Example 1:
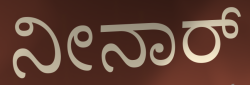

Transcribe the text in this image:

ನೀನಾರ್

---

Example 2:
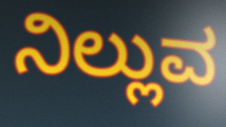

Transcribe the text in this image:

ನಿಲ್ಲುವ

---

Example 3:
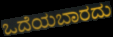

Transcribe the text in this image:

ಒದೆಯಬಾರದು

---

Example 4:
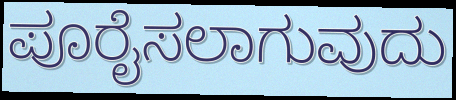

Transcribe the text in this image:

ಪೂರೈಸಲಾಗುವುದು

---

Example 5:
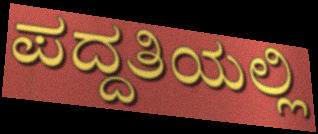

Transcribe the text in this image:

ಪದ್ದತಿಯಲ್ಲಿ